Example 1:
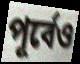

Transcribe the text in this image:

পূর্বেও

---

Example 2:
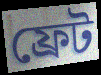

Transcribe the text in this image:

ফ্রেট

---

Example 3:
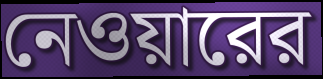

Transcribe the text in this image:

নেওয়ারের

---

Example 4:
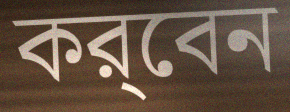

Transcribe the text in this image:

কর্‌বেন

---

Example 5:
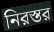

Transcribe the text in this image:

নিরস্তর